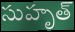
సుహృత్